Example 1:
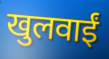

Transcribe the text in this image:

खुलवाईं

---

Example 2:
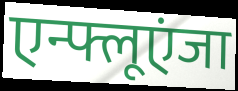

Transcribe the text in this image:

एन्फ्लूएंजा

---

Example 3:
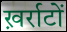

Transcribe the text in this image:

ख़र्राटों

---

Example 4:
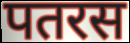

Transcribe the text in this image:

पतरस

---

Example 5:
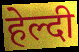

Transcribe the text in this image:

हेल्‍दी